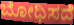
ಬೋಧಿಸದೆ